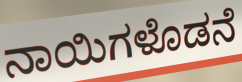
ನಾಯಿಗಳೊಡನೆ